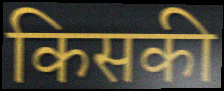
किसकी